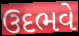
ઉદભવે